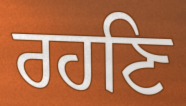
ਰਹਣਿ